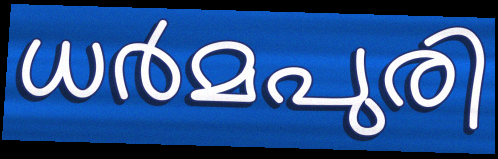
ധർമപുരി